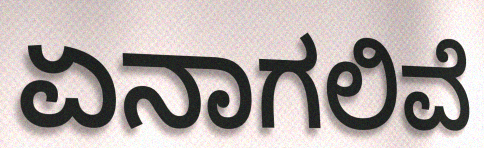
ಏನಾಗಲಿವೆ